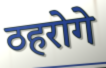
ठहरोगे